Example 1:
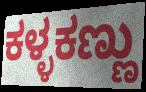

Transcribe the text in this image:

ಕಳ್ಳಕಣ್ಣು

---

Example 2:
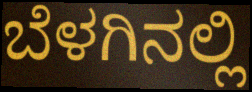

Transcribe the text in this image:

ಬೆಳಗಿನಲ್ಲಿ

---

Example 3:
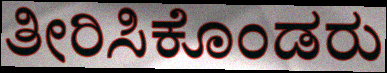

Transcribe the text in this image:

ತೀರಿಸಿಕೊಂಡರು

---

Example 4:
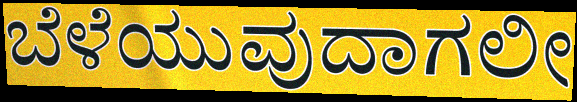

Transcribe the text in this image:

ಬೆಳೆಯುವುದಾಗಲೀ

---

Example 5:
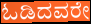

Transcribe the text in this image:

ಓಡಿದವರೇ